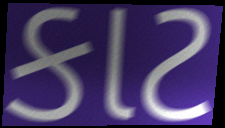
કાટ